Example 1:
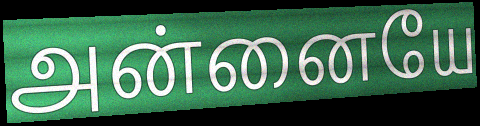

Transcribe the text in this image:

அன்னையே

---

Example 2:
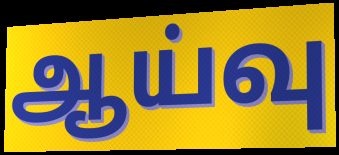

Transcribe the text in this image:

ஆய்வு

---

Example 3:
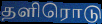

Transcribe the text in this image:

தளிரொடு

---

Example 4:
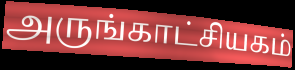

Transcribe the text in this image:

அருங்காட்சியகம்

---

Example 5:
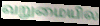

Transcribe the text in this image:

வறுமையில